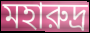
মহারুদ্র